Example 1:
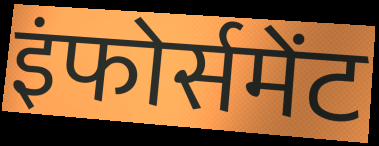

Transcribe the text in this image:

इंफोर्समेंट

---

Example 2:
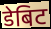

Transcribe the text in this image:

डेबिट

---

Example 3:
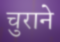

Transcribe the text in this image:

चुराने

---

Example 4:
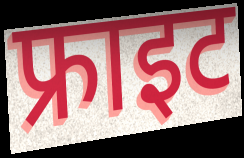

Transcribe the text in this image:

फ्राइट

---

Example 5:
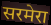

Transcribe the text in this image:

सरमेरा